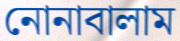
নোনাবালাম